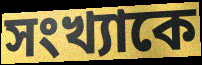
সংখ্যাকে